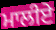
ਮਾਲੀਏ